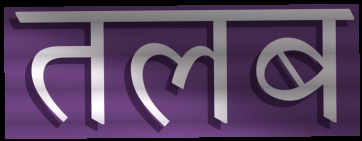
तलब